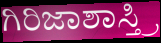
ಗಿರಿಜಾಶಾಸ್ತ್ರಿ